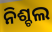
ନିଶ୍ଚଲ